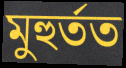
মুহুৰ্তত